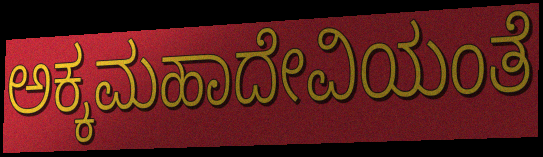
ಅಕ್ಕಮಹಾದೇವಿಯಂತೆ